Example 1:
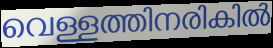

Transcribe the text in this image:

വെള്ളത്തിനരികിൽ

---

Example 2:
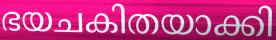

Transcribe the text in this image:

ഭയചകിതയാക്കി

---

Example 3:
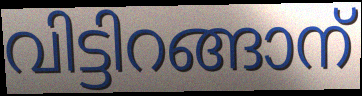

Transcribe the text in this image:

വിട്ടിറങ്ങാന്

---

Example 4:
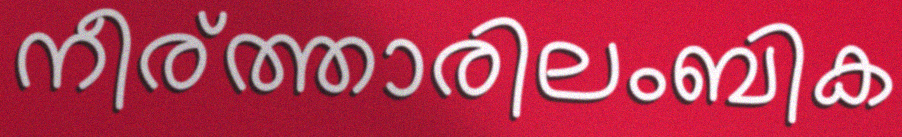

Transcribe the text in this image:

നീര്ത്താരിലംബിക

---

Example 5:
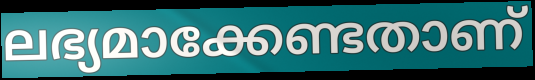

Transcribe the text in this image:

ലഭ്യമാക്കേണ്ടതാണ്